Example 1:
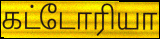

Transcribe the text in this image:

கட்டோரியா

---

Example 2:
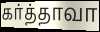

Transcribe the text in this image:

கர்த்தாவா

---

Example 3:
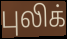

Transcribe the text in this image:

புலிக்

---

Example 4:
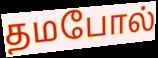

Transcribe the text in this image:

தமபோல்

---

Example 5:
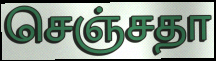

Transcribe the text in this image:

செஞ்சதா